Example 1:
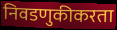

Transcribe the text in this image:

निवडणुकीकरता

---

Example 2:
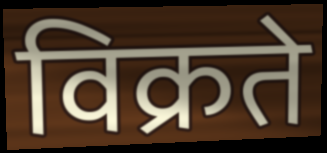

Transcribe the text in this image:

विक्रते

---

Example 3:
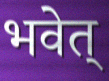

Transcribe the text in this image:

भवेत्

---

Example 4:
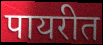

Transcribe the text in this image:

पायरीत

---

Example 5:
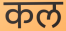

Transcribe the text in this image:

कल